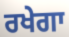
ਰਖੇਗਾ